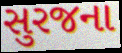
સુરજના